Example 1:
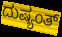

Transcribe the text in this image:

ದುಷ್ಯಂತ್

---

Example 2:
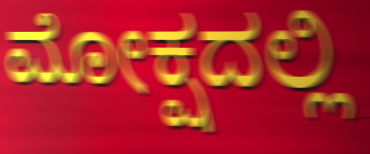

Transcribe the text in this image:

ಮೋಕ್ಷದಲ್ಲಿ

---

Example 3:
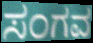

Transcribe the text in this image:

ಸಂಗವ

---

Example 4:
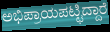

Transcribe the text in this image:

ಅಭಿಪ್ರಾಯಪಟ್ಟಿದ್ದಾರೆ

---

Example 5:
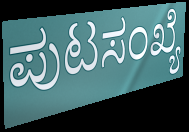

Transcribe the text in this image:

ಪುಟಸಂಖ್ಯೆ